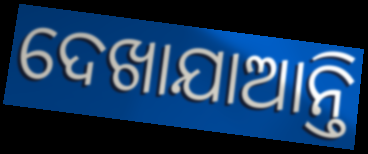
ଦେଖାଯାଆନ୍ତି